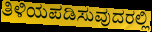
ತಿಳಿಯಪಡಿಸುವುದರಲ್ಲಿ